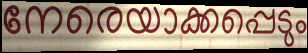
നേരെയാക്കപ്പെടും